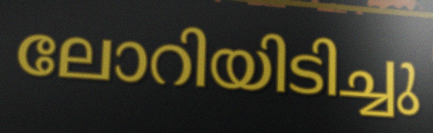
ലോറിയിടിച്ചു